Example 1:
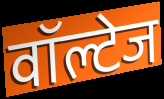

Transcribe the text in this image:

वॉल्टेज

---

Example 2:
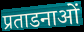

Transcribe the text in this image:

प्रताडनाओं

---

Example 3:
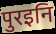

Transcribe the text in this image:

पुरइनि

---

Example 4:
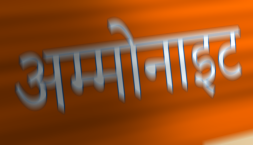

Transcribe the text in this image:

अम्मोनाइट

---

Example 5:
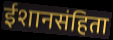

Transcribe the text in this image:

ईशानसंहिता